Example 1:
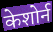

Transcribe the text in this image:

केशोर्न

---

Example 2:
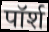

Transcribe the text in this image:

पॉर्श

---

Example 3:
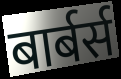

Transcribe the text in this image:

बार्बर्स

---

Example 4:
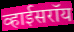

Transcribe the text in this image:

व्हाईसरॉय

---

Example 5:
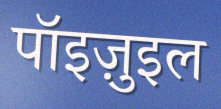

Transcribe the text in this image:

पॉइज़ुइल